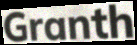
Granth